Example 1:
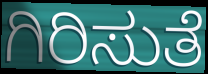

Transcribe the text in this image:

ಗಿರಿಸುತೆ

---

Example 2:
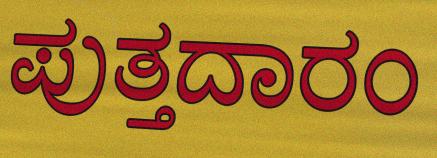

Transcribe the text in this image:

ಪುತ್ತದಾರಂ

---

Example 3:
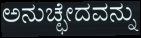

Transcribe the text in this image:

ಅನುಚ್ಛೇದವನ್ನು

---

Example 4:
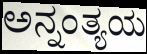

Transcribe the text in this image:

ಅನ್ನಂತ್ಯಯ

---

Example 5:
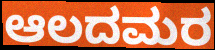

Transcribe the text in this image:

ಆಲದಮರ